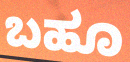
ಬಹೂ